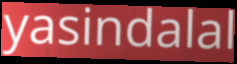
yasindalal